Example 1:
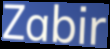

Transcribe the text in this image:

Zabir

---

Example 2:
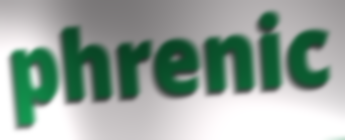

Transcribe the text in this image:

phrenic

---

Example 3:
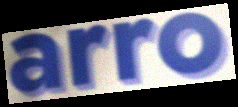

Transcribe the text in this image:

arro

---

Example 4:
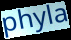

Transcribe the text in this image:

phyla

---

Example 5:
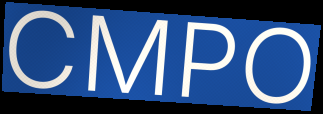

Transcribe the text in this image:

CMPO